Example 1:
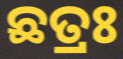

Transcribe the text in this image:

ଛତ୍ରଃ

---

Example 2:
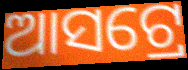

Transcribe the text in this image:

ଆସଟ୍ରେ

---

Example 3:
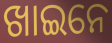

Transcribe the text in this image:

ଖାଇନେ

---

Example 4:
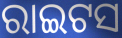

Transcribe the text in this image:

ରାଇଟସ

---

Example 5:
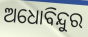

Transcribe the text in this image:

ଅଧୋବିନ୍ଦୁର